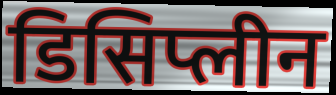
डिसिप्लीन